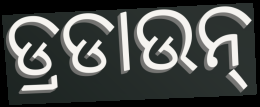
ଡ୍ରଡାଉନ୍